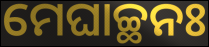
ମେଘାଚ୍ଛନଃ